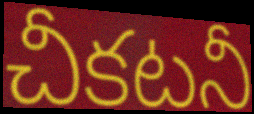
చీకటనీ